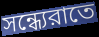
সন্ধ্যেরাতে